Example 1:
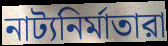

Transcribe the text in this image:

নাট্যনির্মাতারা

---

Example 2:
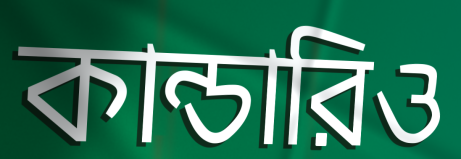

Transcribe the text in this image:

কান্ডারিও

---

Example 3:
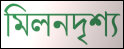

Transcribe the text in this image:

মিলনদৃশ্য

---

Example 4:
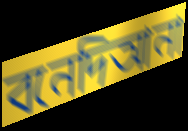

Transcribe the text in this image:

বনেদিআনা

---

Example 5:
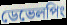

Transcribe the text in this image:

ডেভেলপিং